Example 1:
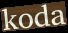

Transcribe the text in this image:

koda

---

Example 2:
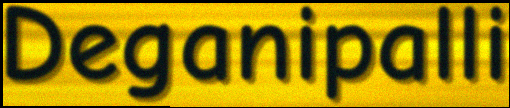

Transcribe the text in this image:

Deganipalli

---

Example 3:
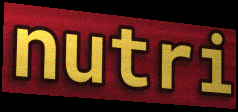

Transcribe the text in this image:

nutri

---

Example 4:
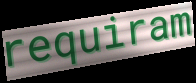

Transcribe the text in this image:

requiram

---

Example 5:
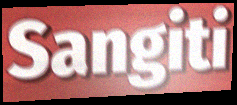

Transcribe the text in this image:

Sangiti